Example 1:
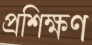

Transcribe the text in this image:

প্ৰশিক্ষণ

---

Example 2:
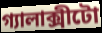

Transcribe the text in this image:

গ্যালাক্সীটো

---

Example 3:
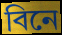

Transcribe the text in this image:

বিনে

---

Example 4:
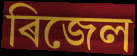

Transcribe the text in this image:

ৰিজেল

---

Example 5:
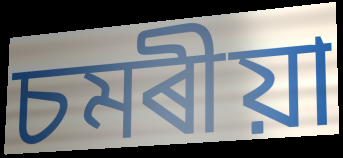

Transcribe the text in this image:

চমৰীয়া